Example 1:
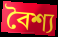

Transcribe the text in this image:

বৈশ্য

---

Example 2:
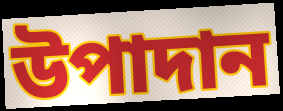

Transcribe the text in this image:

উপাদান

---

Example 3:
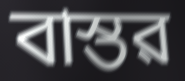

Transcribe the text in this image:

বাস্তৱ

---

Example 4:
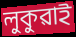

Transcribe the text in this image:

লুকুৱাই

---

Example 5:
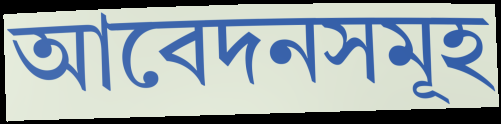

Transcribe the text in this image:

আবেদনসমূহ